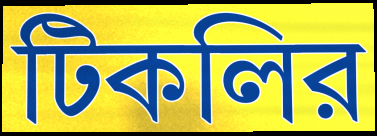
টিকলির